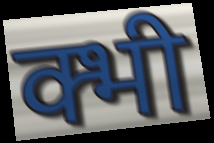
क्भी